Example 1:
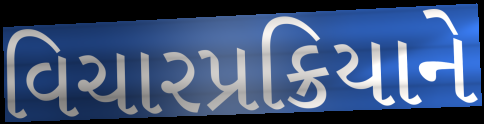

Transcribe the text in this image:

વિચારપ્રક્રિયાને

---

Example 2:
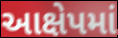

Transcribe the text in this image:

આક્ષેપમાં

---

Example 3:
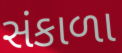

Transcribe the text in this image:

સંકાળા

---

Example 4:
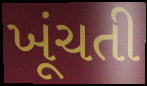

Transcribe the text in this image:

ખૂંચતી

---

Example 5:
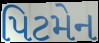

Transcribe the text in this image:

પિટમેન